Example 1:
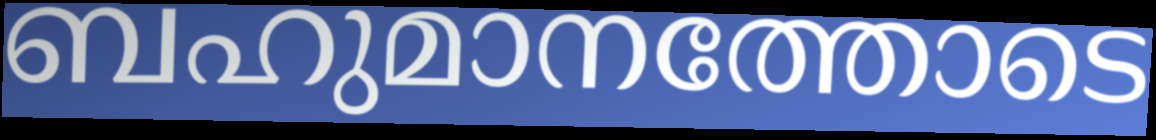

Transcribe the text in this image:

ബഹുമാനത്തോടെ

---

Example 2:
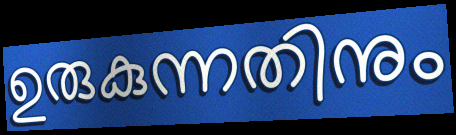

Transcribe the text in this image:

ഉരുകുന്നതിനും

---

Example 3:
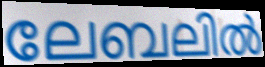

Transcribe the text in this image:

ലേബലിൽ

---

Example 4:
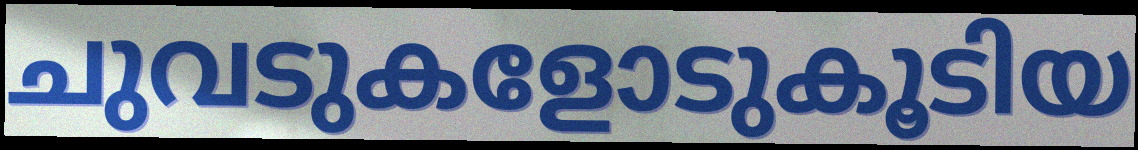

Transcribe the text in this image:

ചുവടുകളോടുകൂടിയ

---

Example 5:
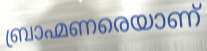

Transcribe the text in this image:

ബ്രാഹ്മണരെയാണ്